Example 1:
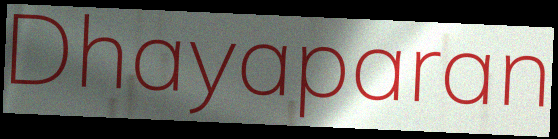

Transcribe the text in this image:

Dhayaparan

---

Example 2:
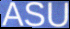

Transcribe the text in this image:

ASU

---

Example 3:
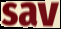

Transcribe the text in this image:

sav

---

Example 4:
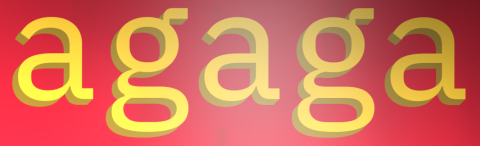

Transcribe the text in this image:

agaga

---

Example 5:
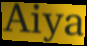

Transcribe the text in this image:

Aiya